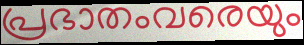
പ്രഭാതംവരെയും